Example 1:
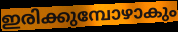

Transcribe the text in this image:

ഇരിക്കുമ്പോഴാകും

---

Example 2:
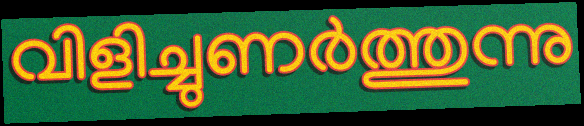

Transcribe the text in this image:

വിളിച്ചുണർത്തുന്നു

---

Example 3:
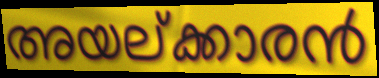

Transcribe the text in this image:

അയല്ക്കാരൻ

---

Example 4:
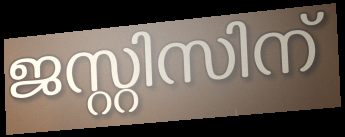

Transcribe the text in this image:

ജസ്റ്റിസിന്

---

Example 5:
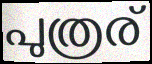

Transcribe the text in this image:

പുത്രര്